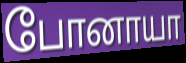
போனாயா